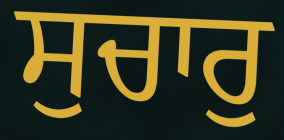
ਸੁਚਾਰੁ